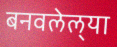
बनवलेल्या